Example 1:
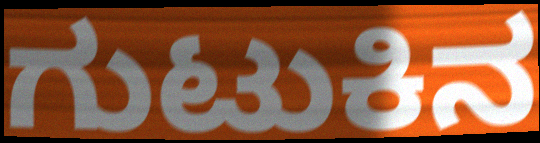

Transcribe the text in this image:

ಗುಟುಕಿನ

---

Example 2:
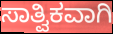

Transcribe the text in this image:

ಸಾತ್ವಿಕವಾಗಿ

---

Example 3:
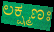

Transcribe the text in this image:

ಲಕ್ಷ್ಮಣಃ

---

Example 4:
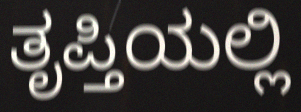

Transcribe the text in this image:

ತೃಪ್ತಿಯಲ್ಲಿ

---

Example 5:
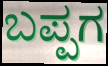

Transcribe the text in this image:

ಬಪ್ಪಗ